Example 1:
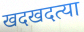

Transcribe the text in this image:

खदखदत्या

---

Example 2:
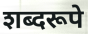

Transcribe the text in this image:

शब्दरूपे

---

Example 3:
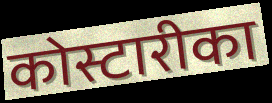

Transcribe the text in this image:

कोस्टारीका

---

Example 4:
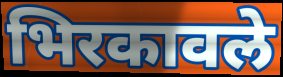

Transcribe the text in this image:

भिरकावले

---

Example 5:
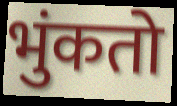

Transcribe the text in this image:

भुंकतो